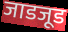
जाडजूड